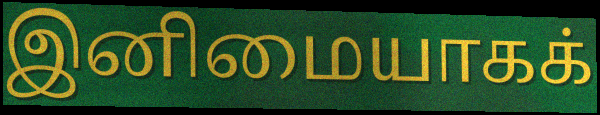
இனிமையாகக்